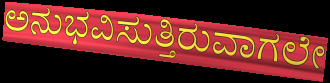
ಅನುಭವಿಸುತ್ತಿರುವಾಗಲೇ